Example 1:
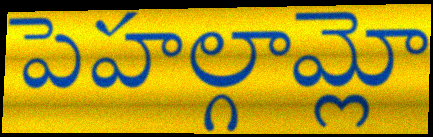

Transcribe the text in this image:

పెహల్గామ్లో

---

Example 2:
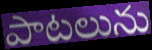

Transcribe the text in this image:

పాటలును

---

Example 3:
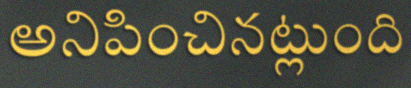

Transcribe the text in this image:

అనిపించినట్లుంది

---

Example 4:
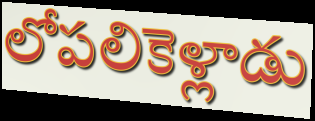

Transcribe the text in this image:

లోపలికెళ్లాడు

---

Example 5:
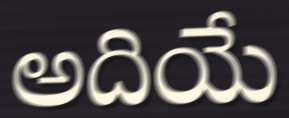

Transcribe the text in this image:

అదియే